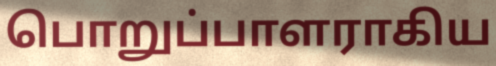
பொறுப்பாளராகிய